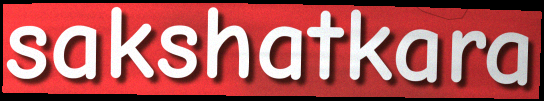
sakshatkara